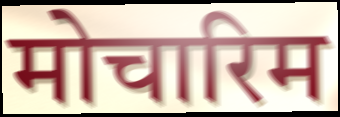
मोचारिम